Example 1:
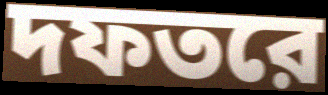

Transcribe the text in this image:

দফতরে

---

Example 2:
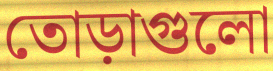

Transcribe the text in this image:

তোড়াগুলো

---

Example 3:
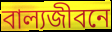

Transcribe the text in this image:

বাল্যজীবনে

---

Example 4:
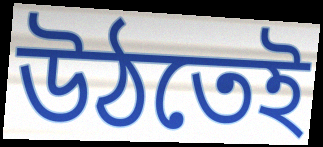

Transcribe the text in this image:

উঠতেই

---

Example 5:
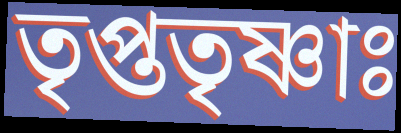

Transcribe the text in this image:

তৃপ্ততৃষ্ণাঃ